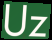
Uz